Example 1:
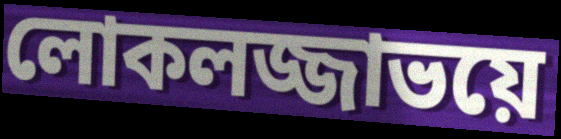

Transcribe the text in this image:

লোকলজ্জাভয়ে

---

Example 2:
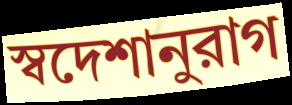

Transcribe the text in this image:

স্বদেশানুরাগ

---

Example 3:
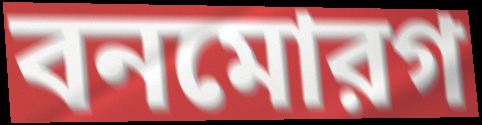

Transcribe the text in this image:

বনমোরগ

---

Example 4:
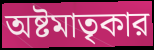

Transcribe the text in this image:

অষ্টমাতৃকার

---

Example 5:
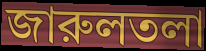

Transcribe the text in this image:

জারুলতলা